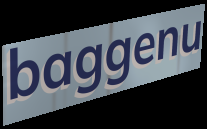
baggenu